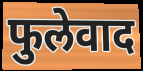
फुलेवाद